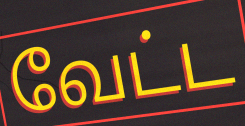
வேட்ட